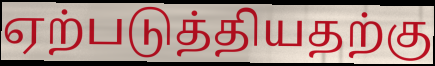
ஏற்படுத்தியதற்கு